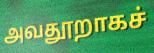
அவதூறாகச்